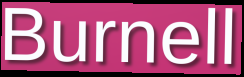
Burnell